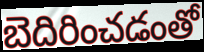
బెదిరించడంతో